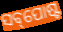
ସବ୍‌ପୋଷ୍ଟ